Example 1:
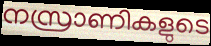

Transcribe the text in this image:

നസ്രാണികളുടെ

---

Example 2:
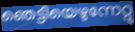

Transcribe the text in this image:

ഞെട്ടിയെഴുന്നേറ്റു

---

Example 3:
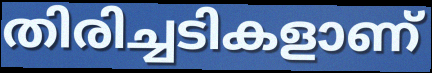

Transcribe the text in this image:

തിരിച്ചടികളാണ്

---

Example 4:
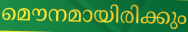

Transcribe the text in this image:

മൌനമായിരിക്കും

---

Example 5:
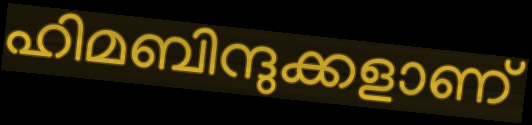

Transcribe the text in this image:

ഹിമബിന്ദുക്കളാണ്